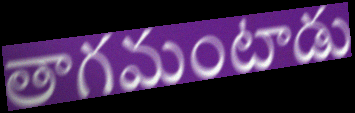
తాగమంటాడు